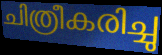
ചിത്രീകരിച്ചു